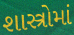
શાસ્ત્રોમાં